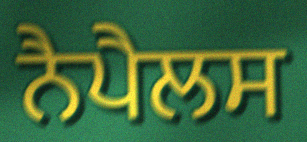
ਨੈਪੈਲਸ